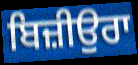
ਬਿਜ਼ੀਉਰਾ